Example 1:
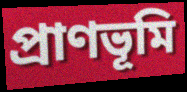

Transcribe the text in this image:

প্রাণভূমি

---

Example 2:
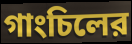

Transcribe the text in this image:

গাংচিলের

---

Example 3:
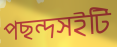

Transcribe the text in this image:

পছন্দসইটি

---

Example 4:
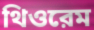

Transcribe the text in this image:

থিওরেম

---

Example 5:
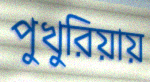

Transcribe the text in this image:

পুখুরিয়ায়